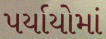
પર્યાયોમાં